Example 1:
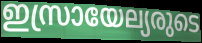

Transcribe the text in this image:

ഇസ്രായേല്യരുടെ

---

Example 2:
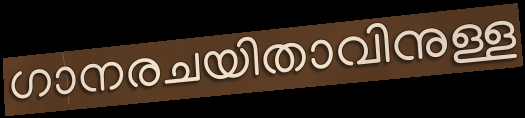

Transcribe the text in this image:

ഗാനരചയിതാവിനുള്ള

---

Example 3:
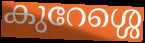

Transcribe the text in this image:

കുറേശ്ശെ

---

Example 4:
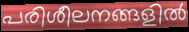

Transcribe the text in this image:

പരിശീലനങ്ങളിൽ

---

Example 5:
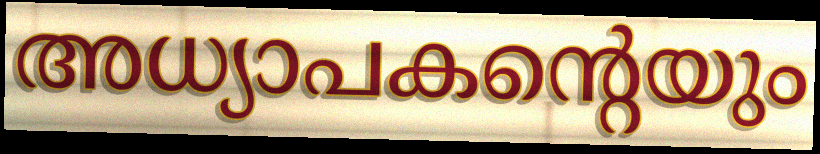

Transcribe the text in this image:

അധ്യാപകന്റെയും